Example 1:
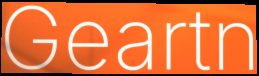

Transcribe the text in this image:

Geartn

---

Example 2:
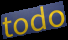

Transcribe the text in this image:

todo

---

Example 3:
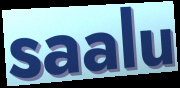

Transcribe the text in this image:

saalu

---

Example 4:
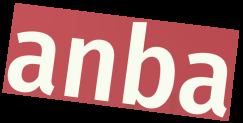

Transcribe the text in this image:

anba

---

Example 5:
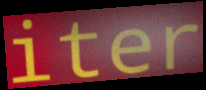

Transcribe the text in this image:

iter